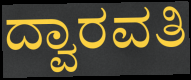
ದ್ವಾರವತಿ